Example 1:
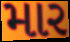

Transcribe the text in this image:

માર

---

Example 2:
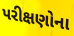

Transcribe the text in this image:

પરીક્ષણોના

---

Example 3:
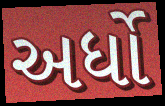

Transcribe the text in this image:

અર્ધો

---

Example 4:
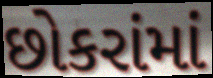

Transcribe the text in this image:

છોકરાંમાં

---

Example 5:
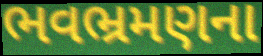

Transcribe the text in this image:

ભવભ્રમણના